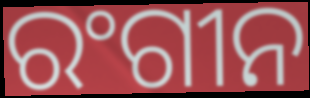
ରଂଗୀନ